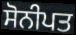
ਸੋਨੀਪਤ